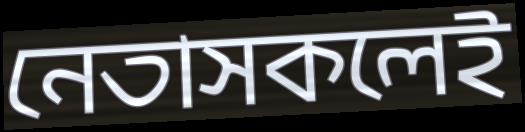
নেতাসকলেই